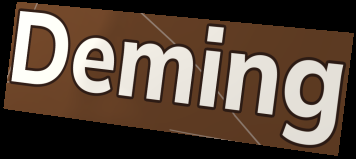
Deming